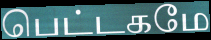
பெட்டகமே